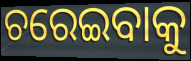
ଚରେଇବାକୁ